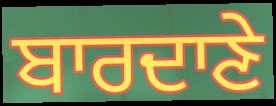
ਬਾਰਦਾਣੇ